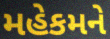
મહેકમને